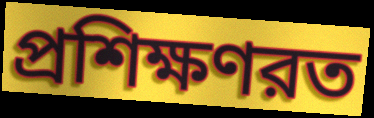
প্রশিক্ষণরত